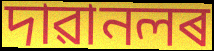
দাৱানলৰ